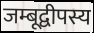
जम्बूद्वीपस्य